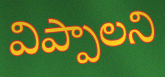
విప్పాలని